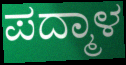
ಪದ್ಮಾಳ